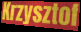
Krzysztof